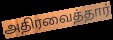
அதிரவைத்தார்